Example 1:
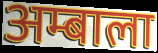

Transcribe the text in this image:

अम्‍बाला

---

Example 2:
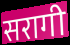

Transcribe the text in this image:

सरागी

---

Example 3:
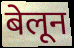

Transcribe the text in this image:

बेलून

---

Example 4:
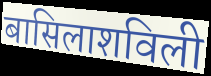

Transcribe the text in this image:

बासिलाशविली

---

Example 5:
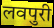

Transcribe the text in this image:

लवपुरी